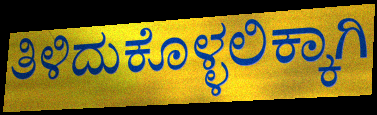
ತಿಳಿದುಕೊಳ್ಳಲಿಕ್ಕಾಗಿ